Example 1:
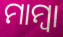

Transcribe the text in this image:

ମାମ୍ଵା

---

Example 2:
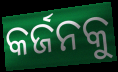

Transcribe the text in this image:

କର୍ଜନକୁ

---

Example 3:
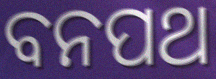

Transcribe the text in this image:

ବନପଥ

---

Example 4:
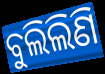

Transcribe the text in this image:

ବୁଲିଲିଣି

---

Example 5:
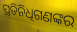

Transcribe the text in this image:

ପ୍ରତିନିଧିଗଣଙ୍କର